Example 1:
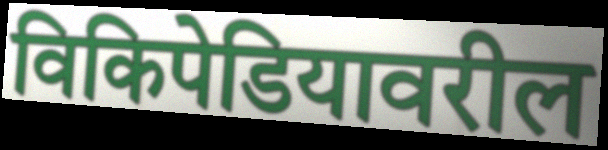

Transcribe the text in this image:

विकिपेडियावरील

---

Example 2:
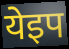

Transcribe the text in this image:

येइप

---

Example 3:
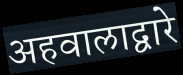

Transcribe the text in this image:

अहवालाद्वारे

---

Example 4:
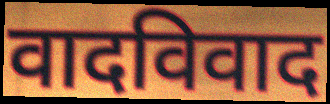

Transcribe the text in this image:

वादविवाद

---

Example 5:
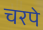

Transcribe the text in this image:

चरपे